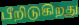
பீறிடுகிறது